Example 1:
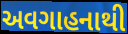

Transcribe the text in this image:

અવગાહનાથી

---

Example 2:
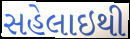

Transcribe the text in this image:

સહેલાઇથી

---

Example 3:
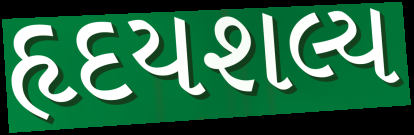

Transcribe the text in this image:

હૃદયશલ્ય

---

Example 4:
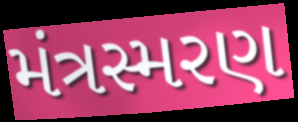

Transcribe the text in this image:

મંત્રસ્મરણ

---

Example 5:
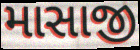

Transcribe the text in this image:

માસાજી